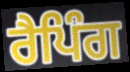
ਰੈਪਿੰਗ